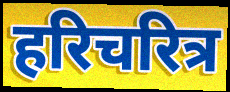
हरिचरित्र